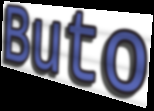
Buto